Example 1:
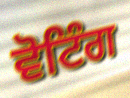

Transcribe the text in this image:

ਵੋਟਿੰਗ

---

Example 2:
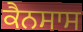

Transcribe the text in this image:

ਕੈਨਸਾਸ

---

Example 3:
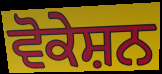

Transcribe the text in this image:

ਵੋਕੇਸ਼ਨ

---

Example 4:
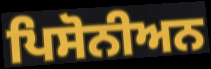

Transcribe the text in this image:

ਪਿਸੋਨੀਅਨ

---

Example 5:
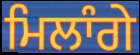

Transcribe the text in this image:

ਮਿਲਾੰਗੇ